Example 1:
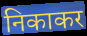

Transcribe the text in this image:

निकाकर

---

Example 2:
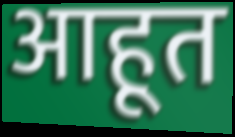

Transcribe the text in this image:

आहूत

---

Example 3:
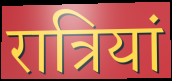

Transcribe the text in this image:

रात्रियां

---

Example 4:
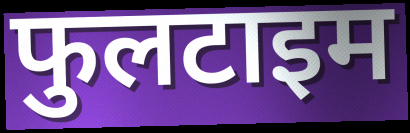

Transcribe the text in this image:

फुलटाइम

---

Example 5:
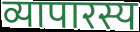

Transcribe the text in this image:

व्यापारस्य